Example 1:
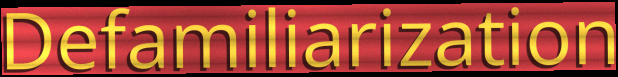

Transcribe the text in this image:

Defamiliarization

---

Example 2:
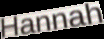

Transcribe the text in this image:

Hannah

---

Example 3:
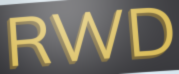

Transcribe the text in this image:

RWD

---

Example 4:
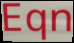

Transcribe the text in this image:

Eqn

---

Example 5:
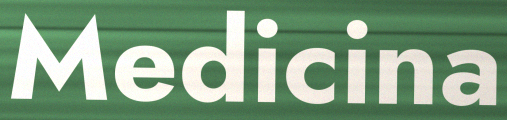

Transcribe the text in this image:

Medicina